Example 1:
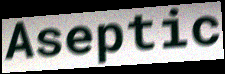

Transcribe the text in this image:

Aseptic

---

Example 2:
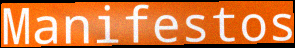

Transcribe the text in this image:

Manifestos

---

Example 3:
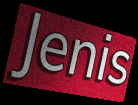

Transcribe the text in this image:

Jenis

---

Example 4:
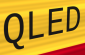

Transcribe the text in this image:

QLED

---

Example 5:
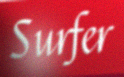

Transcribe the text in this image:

Surfer